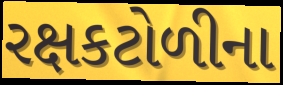
રક્ષકટોળીના